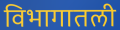
विभागातली